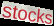
stocks